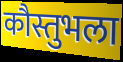
कौस्तुभला